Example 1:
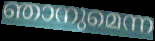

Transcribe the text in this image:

ഞാനുമെന്ന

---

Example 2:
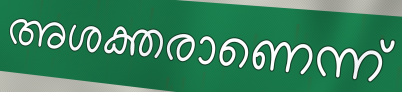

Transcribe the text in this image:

അശക്തരാണെന്ന്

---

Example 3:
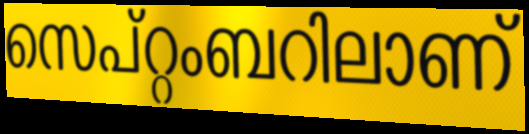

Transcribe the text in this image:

സെപ്റ്റംബറിലാണ്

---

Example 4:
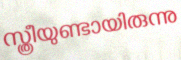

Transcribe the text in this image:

സ്ത്രീയുണ്ടായിരുന്നു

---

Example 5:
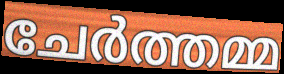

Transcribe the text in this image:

ചേർത്തമ്മ